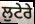
ਲੁਟੇਰੇ